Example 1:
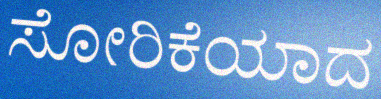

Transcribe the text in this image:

ಸೋರಿಕೆಯಾದ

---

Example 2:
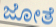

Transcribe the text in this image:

ಜೋತೆ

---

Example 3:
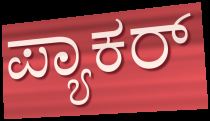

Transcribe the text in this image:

ಪ್ಯಾಕರ್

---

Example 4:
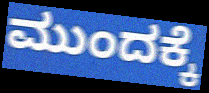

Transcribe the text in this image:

ಮುಂದಕ್ಕೆ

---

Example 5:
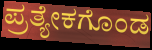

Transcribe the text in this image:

ಪ್ರತ್ಯೇಕಗೊಂಡ